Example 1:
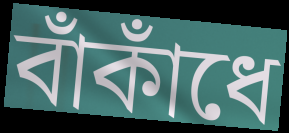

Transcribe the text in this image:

বাঁকাঁধে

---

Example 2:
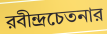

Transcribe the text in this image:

রবীন্দ্রচেতনার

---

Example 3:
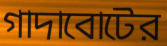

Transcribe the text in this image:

গাদাবোটের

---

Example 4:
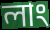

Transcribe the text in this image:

লাং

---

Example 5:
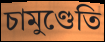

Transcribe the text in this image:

চামুণ্ডেতি